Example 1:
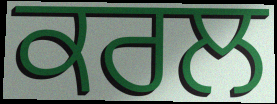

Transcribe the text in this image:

ਕਰਲ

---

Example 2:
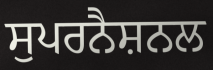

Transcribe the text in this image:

ਸੁਪਰਨੈਸ਼ਨਲ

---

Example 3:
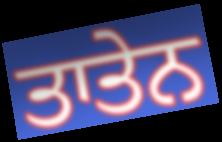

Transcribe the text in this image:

ਤਾਤੇਨ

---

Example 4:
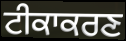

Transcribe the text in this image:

ਟੀਕਾਕਰਣ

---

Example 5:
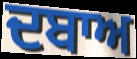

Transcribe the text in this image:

ਦਬਾਅ